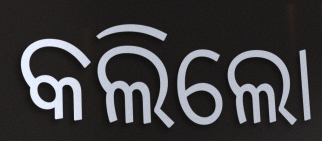
କଲିଲୋ